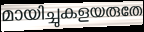
മായിച്ചുകളയരുതേ